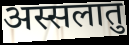
अस्सलातु